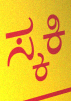
ಸ್ಕಕಿ